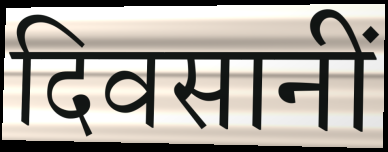
दिवसानीं